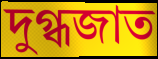
দুগ্ধজাত